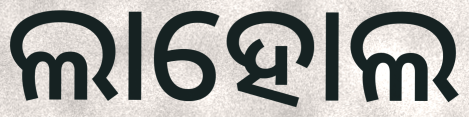
ଲାହୋଲ